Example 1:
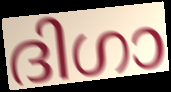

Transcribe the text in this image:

ദിഗാ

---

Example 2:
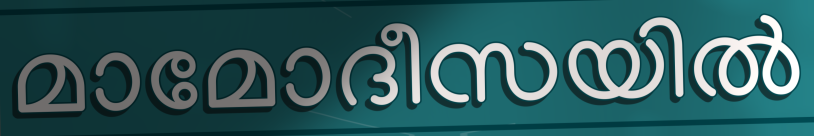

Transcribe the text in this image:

മാമോദീസയിൽ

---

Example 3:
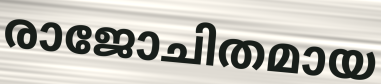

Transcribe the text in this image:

രാജോചിതമായ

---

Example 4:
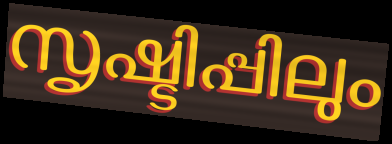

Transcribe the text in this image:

സൃഷ്ടിപ്പിലും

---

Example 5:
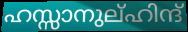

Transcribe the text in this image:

ഹസ്സാനുല്ഹിന്ദ്